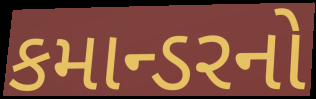
કમાન્ડરનો